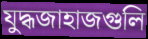
যুদ্ধজাহাজগুলি